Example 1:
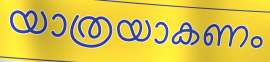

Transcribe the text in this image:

യാത്രയാകണം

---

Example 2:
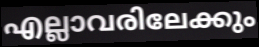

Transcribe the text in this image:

എല്ലാവരിലേക്കും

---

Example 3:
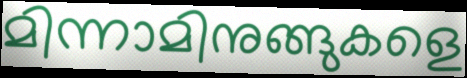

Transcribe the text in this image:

മിന്നാമിനുങ്ങുകളെ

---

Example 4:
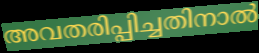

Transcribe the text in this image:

അവതരിപ്പിച്ചതിനാൽ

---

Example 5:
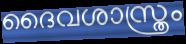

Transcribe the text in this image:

ദൈവശാസ്ത്രം